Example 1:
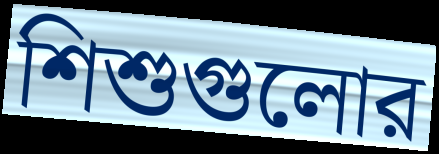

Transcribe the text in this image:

শিশুগুলোর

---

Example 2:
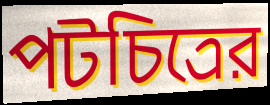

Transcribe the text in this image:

পটচিত্রের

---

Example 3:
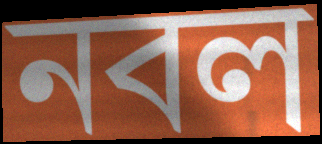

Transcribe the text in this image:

নবল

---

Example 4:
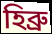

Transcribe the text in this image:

হিব্রু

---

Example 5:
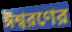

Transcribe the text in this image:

ঈশ্বরণের